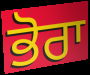
ਭੋਰਾ